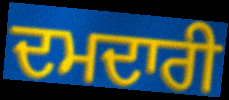
ਦਮਦਾਰੀ